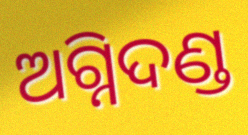
ଅଗ୍ନିଦଣ୍ଡ